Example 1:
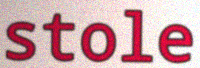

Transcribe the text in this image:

stole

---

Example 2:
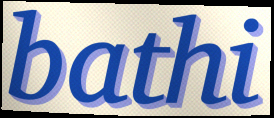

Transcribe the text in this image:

bathi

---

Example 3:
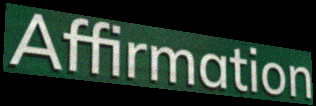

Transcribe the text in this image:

Affirmation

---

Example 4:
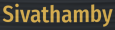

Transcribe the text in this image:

Sivathamby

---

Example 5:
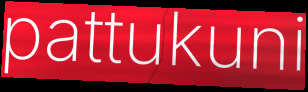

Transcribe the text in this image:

pattukuni